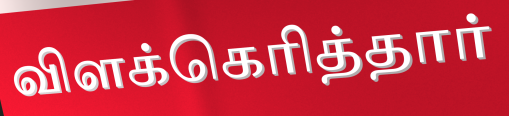
விளக்கெரித்தார்